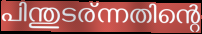
പിന്തുടര്ന്നതിന്റെ